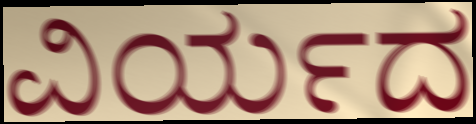
ವಿರ್ಯದ